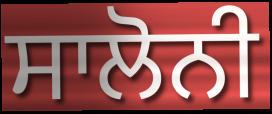
ਸਾਲੋਨੀ